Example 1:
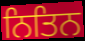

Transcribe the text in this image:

ਨਿਤਿਨ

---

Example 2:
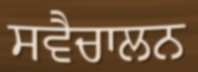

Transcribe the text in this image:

ਸਵੈਚਾਲਨ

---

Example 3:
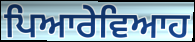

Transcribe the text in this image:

ਪਿਆਰੇਵਿਆਹ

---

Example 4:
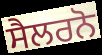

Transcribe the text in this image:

ਸੈਲਰਨੋ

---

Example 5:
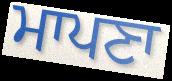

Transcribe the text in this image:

ਮਾਪਣਾ